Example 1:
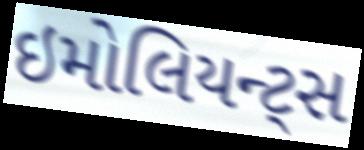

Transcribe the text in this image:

ઇમોલિયન્ટ્સ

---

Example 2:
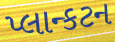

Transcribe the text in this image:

પ્લાન્કટન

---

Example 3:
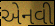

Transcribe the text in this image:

એનવી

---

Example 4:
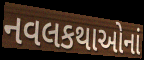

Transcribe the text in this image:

નવલકથાઓનાં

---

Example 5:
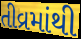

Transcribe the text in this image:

તીવ્રમાંથી